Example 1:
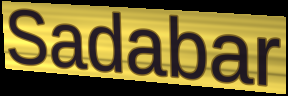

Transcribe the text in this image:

Sadabar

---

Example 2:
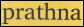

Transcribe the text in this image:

prathna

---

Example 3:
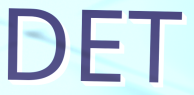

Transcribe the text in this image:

DET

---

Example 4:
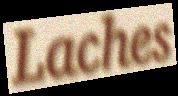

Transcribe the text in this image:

Laches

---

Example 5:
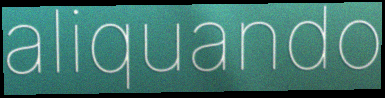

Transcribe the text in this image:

aliquando